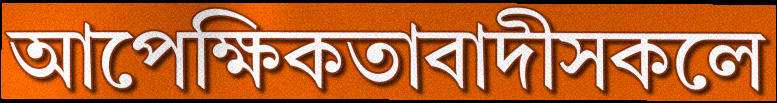
আপেক্ষিকতাবাদীসকলে